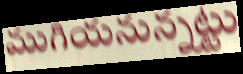
ముగియనున్నట్టు